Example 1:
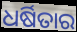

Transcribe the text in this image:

ଧର୍ଷିତାର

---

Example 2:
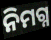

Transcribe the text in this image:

ନିମଗ୍ନ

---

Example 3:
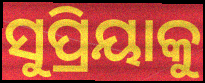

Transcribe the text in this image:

ସୁପ୍ରିୟାକୁ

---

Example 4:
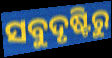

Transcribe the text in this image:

ସବୁଦୃଷ୍ଟିରୁ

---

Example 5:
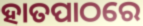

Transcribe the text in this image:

ହାତପାଠରେ